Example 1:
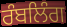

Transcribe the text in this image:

ਰੰਬਲਿੰਗ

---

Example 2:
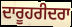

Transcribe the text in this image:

ਦਾਰੂਹਰੀਦਰਾ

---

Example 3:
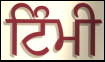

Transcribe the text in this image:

ਟਿੰਮੀ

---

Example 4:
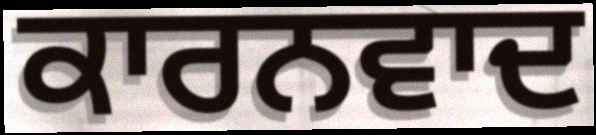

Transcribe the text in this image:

ਕਾਰਨਵਾਦ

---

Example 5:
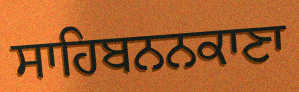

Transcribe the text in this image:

ਸਾਹਿਬਨਨਕਾਣਾ